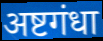
अष्टगंधा